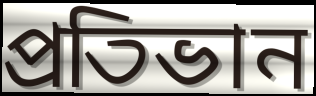
প্রতিভান